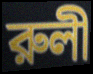
রুলী